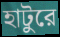
হাটুরে